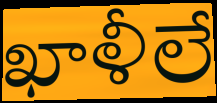
ఖాళీలే